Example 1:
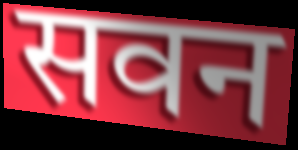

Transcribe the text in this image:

सवन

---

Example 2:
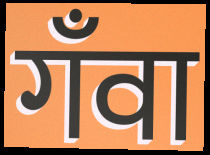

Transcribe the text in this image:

गँवा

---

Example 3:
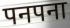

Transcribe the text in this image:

पनपना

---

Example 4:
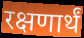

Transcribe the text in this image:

रक्षणार्थं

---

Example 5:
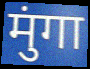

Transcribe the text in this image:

मुंगा